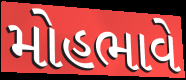
મોહભાવે